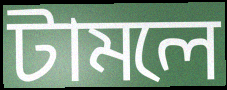
টামলে